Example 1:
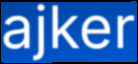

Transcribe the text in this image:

ajker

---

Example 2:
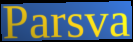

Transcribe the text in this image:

Parsva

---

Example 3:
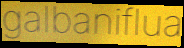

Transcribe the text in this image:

galbaniflua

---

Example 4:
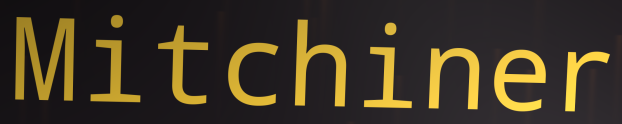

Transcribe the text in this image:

Mitchiner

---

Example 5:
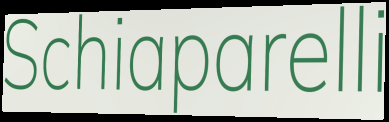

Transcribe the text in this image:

Schiaparelli